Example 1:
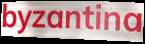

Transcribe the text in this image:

byzantina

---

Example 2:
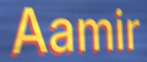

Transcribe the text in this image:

Aamir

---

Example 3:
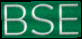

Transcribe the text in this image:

BSE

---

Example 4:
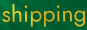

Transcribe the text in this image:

shipping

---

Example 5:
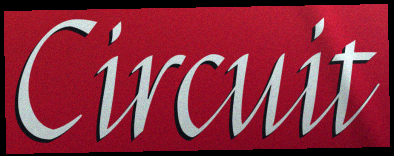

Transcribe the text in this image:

Circuit